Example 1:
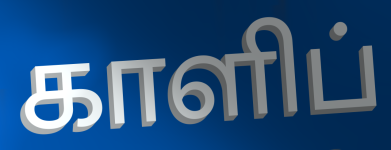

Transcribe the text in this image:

காளிப்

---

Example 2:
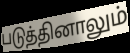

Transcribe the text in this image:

படுத்தினாலும்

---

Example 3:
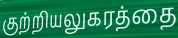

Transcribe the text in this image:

குற்றியலுகரத்தை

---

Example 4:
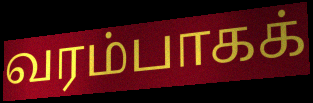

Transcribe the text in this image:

வரம்பாகக்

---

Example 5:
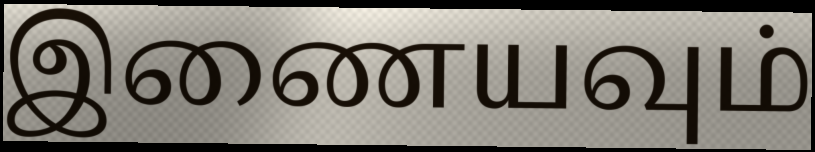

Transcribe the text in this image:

இணையவும்